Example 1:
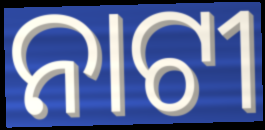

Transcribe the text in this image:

ନାଟୀ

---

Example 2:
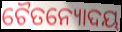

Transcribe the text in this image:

ଚୈତନ୍ୟୋଦୟ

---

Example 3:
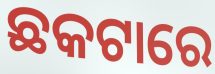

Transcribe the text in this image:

ଛକଟାରେ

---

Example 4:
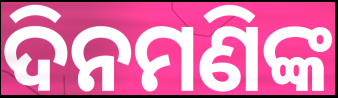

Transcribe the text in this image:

ଦିନମଣିଙ୍କ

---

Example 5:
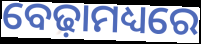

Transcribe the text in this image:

ବେଢ଼ାମଧ୍ୟରେ